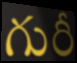
గురీ